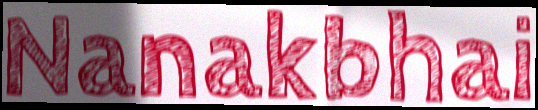
Nanakbhai